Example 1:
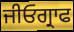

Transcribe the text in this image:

ਜੀਓਗ੍ਰਾਫ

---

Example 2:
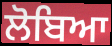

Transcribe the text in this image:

ਲੋਬਿਆ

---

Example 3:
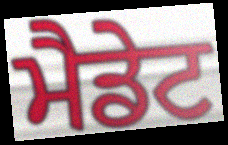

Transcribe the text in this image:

ਮੈਡੇਟ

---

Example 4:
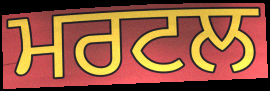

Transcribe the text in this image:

ਮਰਟਲ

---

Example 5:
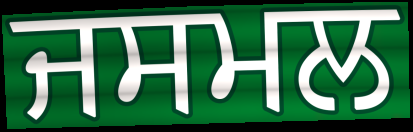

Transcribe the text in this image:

ਜਸਮਲ